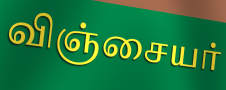
விஞ்சையர்